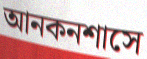
আনকনশাসে